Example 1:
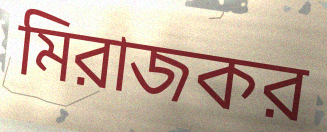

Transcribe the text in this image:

মিরাজকর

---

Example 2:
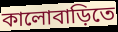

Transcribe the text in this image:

কালোবাড়িতে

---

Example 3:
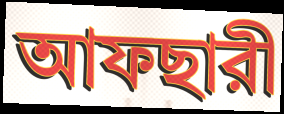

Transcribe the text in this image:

আফছারী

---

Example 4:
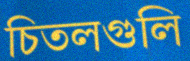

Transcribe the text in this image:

চিতলগুলি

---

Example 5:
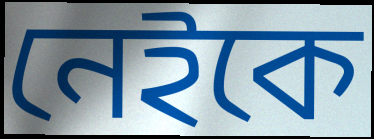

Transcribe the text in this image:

নেইকে